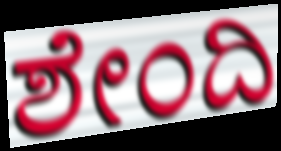
ಶೇಂದಿ